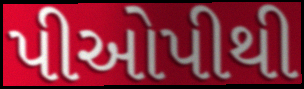
પીઓપીથી